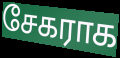
சேகராக